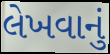
લેખવાનું